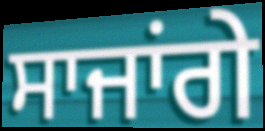
ਸਾਜਾਂਗੇ